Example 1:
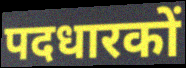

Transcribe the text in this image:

पदधारकों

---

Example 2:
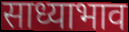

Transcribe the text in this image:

साध्याभाव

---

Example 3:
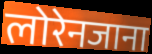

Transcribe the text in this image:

लोरेनजाना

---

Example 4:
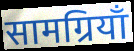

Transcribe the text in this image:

सामग्रियाँ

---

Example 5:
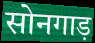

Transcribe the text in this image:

सोनगाड़